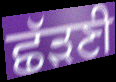
ਛੱੜਣੀ